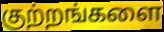
குற்றங்களை